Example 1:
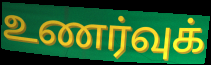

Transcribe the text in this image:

உணர்வுக்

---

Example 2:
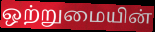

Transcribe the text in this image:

ஒற்றுமையின்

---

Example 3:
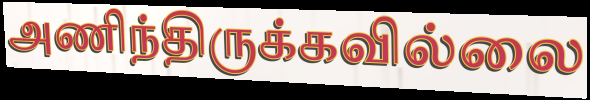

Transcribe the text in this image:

அணிந்திருக்கவில்லை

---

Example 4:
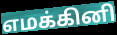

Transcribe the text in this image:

எமக்கினி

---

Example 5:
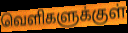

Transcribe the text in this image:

வெளிகளுக்குள்